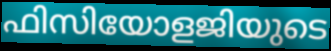
ഫിസിയോളജിയുടെ